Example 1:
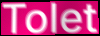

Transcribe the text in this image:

Tolet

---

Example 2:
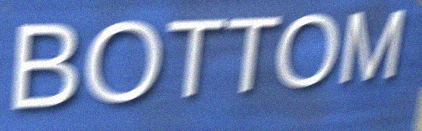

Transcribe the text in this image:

BOTTOM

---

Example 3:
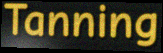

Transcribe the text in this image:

Tanning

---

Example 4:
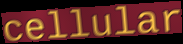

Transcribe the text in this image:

cellular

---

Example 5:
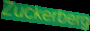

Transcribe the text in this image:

Zuckerberg